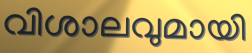
വിശാലവുമായി